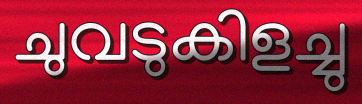
ചുവടുകിളച്ചു